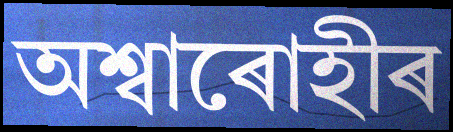
অশ্বাৰোহীৰ